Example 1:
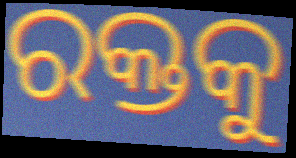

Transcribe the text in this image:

ରକ୍ତକୁ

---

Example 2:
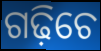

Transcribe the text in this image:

ଗଢ଼ିଚେ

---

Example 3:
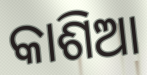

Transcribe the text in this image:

କାଶିଆ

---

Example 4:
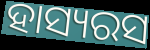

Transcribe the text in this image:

ହାସ୍ୟରସ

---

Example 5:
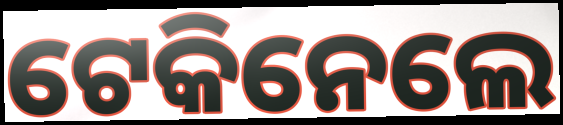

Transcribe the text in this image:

ଟେକିନେଲେ